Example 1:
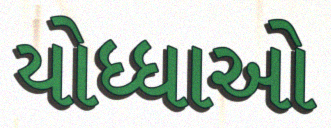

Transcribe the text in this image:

યોધ્ધાઓ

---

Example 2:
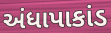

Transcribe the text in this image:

અંધાપાકાંડ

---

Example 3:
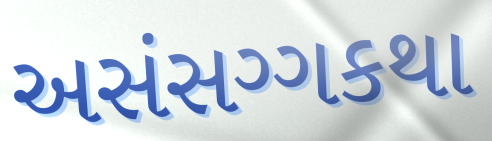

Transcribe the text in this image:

અસંસગ્ગકથા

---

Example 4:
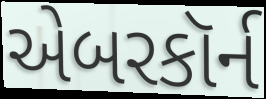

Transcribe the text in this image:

એબરકૉર્ન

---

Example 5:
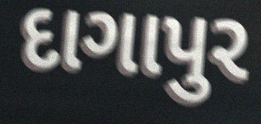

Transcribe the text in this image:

દાગાપુર